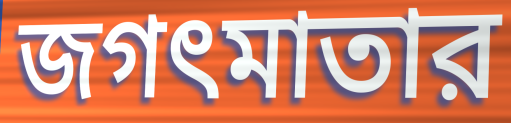
জগৎমাতার